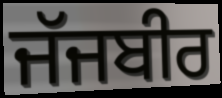
ਜੱਜਬੀਰ